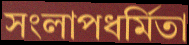
সংলাপধর্মিতা